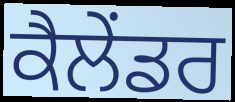
ਕੈਲੇਂਡਰ